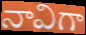
నావిగా